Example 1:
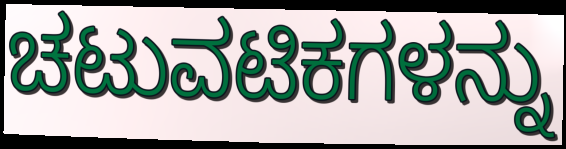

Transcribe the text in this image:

ಚಟುವಟಿಕಗಳನ್ನು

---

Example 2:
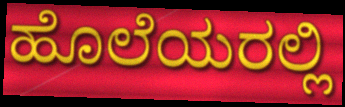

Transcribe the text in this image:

ಹೊಲೆಯರಲ್ಲಿ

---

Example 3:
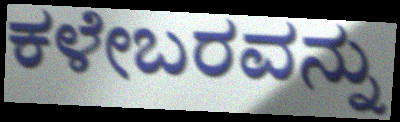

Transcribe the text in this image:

ಕಳೇಬರವನ್ನು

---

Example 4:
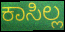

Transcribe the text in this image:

ಕಾಸಿಲ್ಲ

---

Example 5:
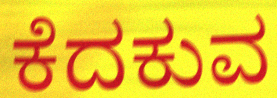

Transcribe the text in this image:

ಕೆದಕುವ